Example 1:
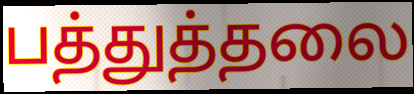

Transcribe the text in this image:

பத்துத்தலை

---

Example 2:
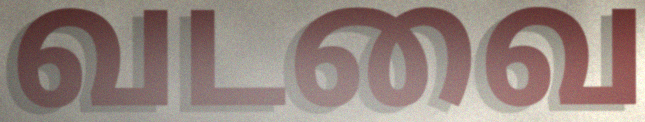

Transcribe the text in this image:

வடவை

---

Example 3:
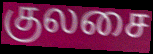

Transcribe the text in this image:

குலசை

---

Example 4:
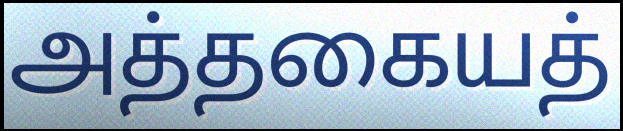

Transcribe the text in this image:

அத்தகையத்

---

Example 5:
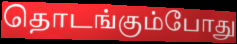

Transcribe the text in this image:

தொடங்கும்போது